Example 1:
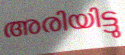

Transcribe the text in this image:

അരിയിട്ടു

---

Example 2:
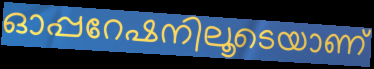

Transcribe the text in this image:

ഓപ്പറേഷനിലൂടെയാണ്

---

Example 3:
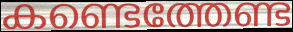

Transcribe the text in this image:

കണ്ടെത്തേണ്ട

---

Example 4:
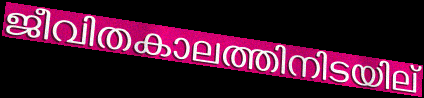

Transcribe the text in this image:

ജീവിതകാലത്തിനിടയില്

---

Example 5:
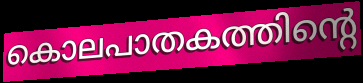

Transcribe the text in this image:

കൊലപാതകത്തിന്റെ